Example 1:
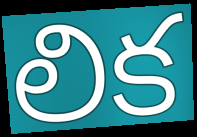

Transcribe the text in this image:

లిక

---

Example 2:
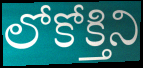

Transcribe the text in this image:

లోకోక్తిని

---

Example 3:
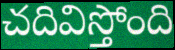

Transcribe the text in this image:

చదివిస్తోంది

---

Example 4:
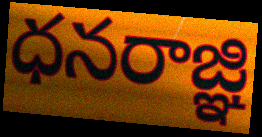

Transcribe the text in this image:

ధనరాజ్ఞి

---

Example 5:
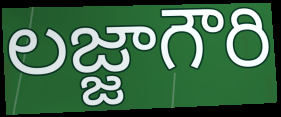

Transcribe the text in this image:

లజ్జాగౌరి